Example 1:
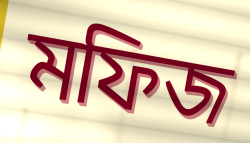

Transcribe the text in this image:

মফিজ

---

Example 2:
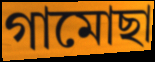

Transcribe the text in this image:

গামোছা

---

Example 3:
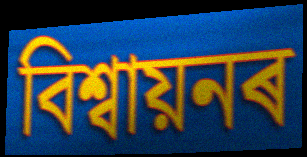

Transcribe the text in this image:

বিশ্বায়নৰ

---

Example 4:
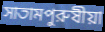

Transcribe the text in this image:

সাতামপুৰুষীয়া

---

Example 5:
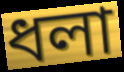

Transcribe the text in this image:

ধলা